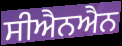
ਸੀਐਨਐਨ